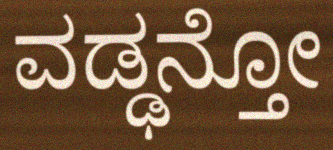
ವಡ್ಢನ್ತೋ